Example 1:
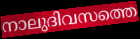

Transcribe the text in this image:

നാലുദിവസത്തെ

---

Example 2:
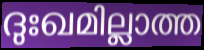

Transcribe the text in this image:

ദുഃഖമില്ലാത്ത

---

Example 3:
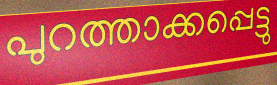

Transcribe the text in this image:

പുറത്താക്കപ്പെട്ടു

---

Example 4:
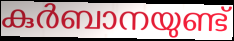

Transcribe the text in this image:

കുർബാനയുണ്ട്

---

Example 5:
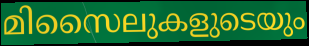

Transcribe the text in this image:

മിസൈലുകളുടെയും